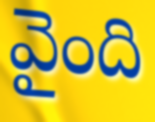
వైంది